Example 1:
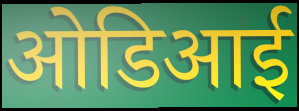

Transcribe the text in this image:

ओडिआई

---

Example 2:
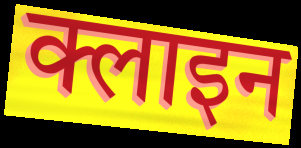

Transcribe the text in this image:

क्लाइन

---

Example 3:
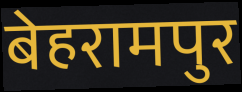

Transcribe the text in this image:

बेहरामपुर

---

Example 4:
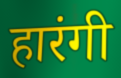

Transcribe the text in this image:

हारंगी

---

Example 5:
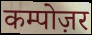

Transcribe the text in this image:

कम्पोज़र